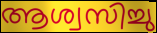
ആശ്വസിച്ചു